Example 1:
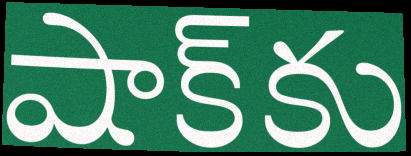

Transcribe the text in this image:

షాక్‌కు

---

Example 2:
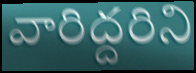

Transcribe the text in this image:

వారిద్దరిని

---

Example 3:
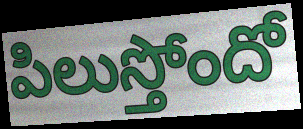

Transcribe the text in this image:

పిలుస్తోందో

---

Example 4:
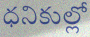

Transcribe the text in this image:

ధనికుల్లో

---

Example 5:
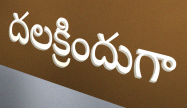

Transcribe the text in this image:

దలక్రిందుగా